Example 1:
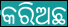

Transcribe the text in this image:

କରିଅଛ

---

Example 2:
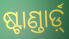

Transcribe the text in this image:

ଷ୍ଟାଣ୍ଡାର୍ଡ଼୍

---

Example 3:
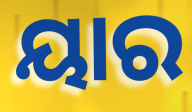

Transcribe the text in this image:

ୟାର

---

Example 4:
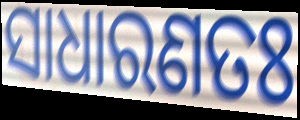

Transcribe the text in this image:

ସାଧାରଣତଃ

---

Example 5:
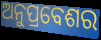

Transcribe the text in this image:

ଅନୁପ୍ରବେଶର